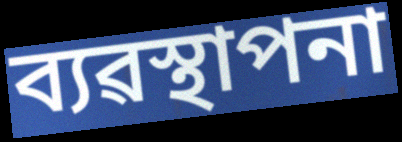
ব্যৱস্থাপনা